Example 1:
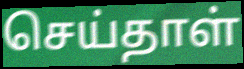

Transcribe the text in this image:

செய்தாள்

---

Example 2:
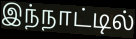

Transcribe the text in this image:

இந்நாட்டில்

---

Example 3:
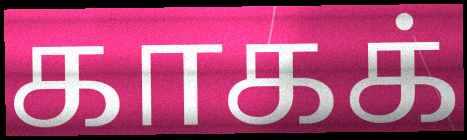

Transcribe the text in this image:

காகக்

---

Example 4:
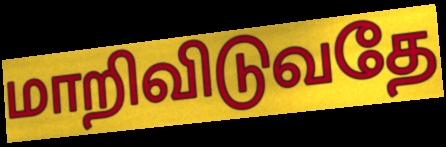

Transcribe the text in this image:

மாறிவிடுவதே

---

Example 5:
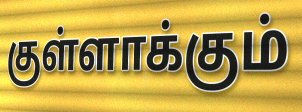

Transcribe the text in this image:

குள்ளாக்கும்